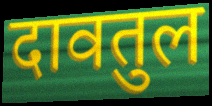
दावतुल